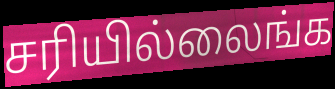
சரியில்லைங்க